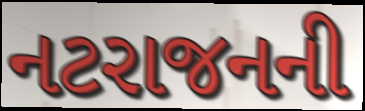
નટરાજનની